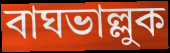
বাঘভাল্লুক